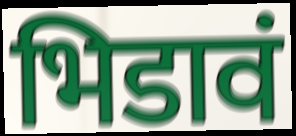
भिडावं